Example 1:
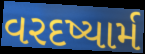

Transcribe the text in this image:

વરદષ્યાર્મ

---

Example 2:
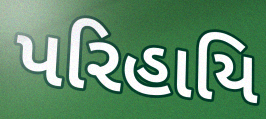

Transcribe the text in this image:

પરિહાયિ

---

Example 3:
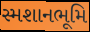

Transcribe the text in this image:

સ્મશાનભૂમિ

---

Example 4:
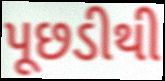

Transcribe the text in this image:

પૂછડીથી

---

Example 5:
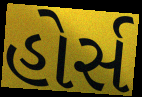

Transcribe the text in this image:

હોર્સ